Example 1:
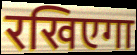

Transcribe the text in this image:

रखिएगा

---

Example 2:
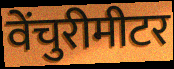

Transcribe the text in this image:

वेंचुरीमीटर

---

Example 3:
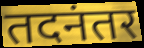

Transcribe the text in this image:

तदनंतर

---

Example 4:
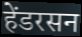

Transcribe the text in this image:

हेंडरसन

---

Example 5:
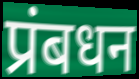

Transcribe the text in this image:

प्रंबधन